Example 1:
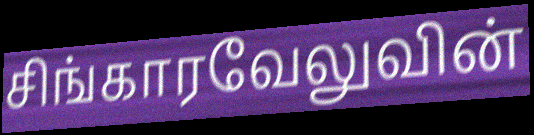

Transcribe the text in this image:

சிங்காரவேலுவின்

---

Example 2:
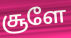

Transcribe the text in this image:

சூளே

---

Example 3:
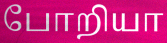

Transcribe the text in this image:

போறியா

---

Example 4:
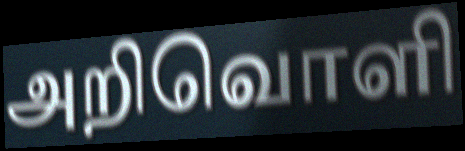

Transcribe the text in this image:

அறிவொளி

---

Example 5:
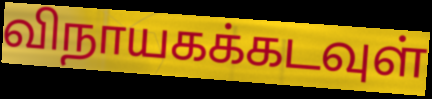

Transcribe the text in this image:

விநாயகக்கடவுள்